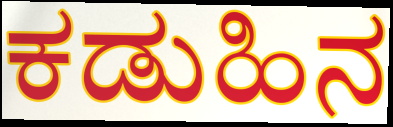
ಕಡುಹಿನ